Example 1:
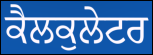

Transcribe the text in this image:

ਕੈਲਕੁਲੇਟਰ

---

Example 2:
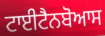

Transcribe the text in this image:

ਟਾਈਟੈਨਬੋਆਸ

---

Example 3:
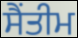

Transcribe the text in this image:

ਸੈਂਤੀਮ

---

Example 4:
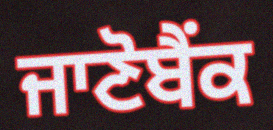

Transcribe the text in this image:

ਜਾਣੋਬੈਂਕ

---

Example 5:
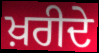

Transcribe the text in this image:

ਖ਼ਰੀਦੇ